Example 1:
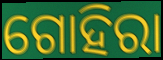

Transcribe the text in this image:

ଗୋହିରା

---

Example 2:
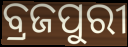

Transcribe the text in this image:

ବ୍ରଜପୁରୀ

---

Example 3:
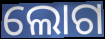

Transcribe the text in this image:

ଲୋଗ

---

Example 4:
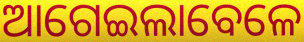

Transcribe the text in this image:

ଆଗେଇଲାବେଳେ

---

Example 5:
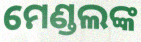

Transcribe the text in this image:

ମେଣ୍ଡଲଙ୍କ